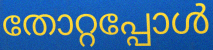
തോറ്റപ്പോൾ